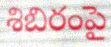
శిబిరంపై